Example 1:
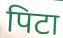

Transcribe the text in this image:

पिटा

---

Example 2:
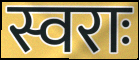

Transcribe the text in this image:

स्वराः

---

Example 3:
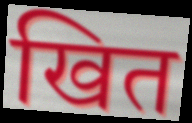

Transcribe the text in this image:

खित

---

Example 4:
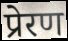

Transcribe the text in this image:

प्रेरण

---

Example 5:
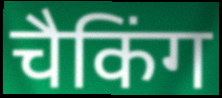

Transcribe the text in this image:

चैकिंग